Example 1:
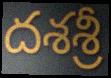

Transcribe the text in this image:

దశశ్రీ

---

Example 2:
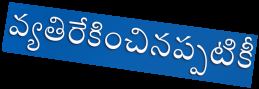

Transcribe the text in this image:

వ్యతిరేకించినప్పటికీ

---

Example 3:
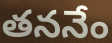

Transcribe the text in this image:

తననేం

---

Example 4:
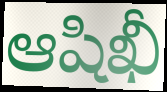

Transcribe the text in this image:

ఆషిఖీ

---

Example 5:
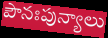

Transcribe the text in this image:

పౌనఃపున్యాలు